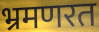
भ्रमणरत